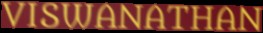
VISWANATHAN